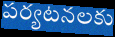
పర్యటనలకు